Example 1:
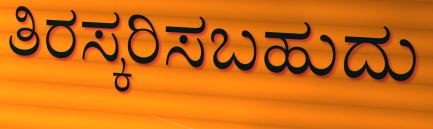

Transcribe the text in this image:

ತಿರಸ್ಕರಿಸಬಹುದು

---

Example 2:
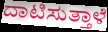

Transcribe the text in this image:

ದಾಟಿಸುತ್ತಾಳೆ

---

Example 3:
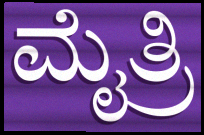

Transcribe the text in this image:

ಮೈತ್ರಿ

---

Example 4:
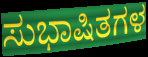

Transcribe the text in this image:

ಸುಭಾಷಿತಗಳ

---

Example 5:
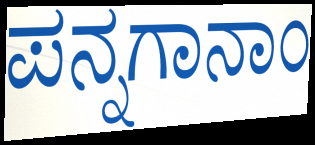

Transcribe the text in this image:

ಪನ್ನಗಾನಾಂ